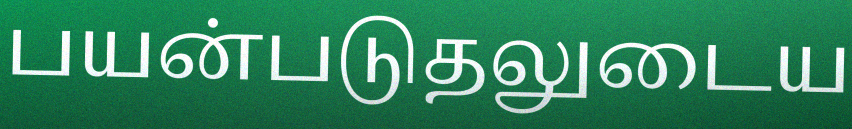
பயன்படுதலுடைய